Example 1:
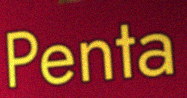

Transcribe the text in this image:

Penta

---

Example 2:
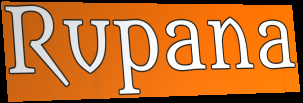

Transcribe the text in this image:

Rupana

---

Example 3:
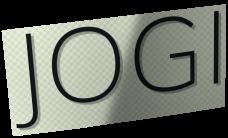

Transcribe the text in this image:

JOGI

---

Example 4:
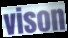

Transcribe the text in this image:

vison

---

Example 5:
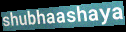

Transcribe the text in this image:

shubhaashaya